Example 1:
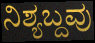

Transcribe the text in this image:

ನಿಶ್ಯಬ್ದವು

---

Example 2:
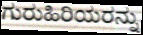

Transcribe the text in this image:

ಗುರುಹಿರಿಯರನ್ನು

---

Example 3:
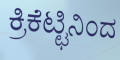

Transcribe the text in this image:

ಕ್ರಿಕೆಟ್ಟಿನಿಂದ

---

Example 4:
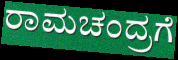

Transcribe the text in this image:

ರಾಮಚಂದ್ರಗೆ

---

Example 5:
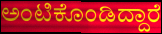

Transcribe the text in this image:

ಅಂಟಿಕೊಂಡಿದ್ದಾರೆ